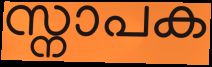
സ്നാപക